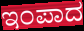
ಇಂಪಾದ